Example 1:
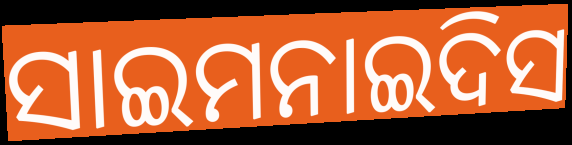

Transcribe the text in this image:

ସାଇମନାଇଦିସ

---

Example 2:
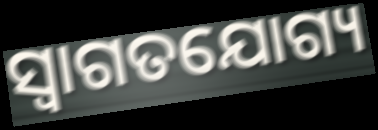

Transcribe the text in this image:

ସ୍ବାଗତଯୋଗ୍ୟ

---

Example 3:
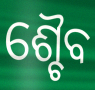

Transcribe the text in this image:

ଶ୍ଚୈବ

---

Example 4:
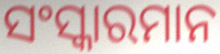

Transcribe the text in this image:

ସଂସ୍କାରମାନ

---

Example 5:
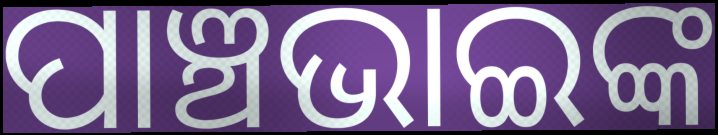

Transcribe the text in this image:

ପାଞ୍ଚଭାଇଙ୍କ